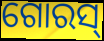
ଗୋରସ୍